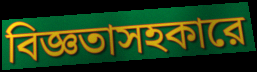
বিজ্ঞতাসহকারে